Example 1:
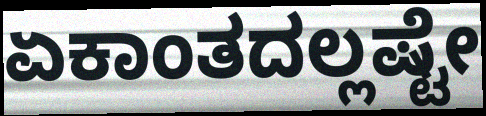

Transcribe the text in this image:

ಏಕಾಂತದಲ್ಲಷ್ಟೇ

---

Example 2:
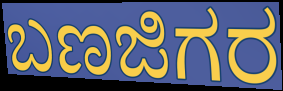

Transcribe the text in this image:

ಬಣಜಿಗರ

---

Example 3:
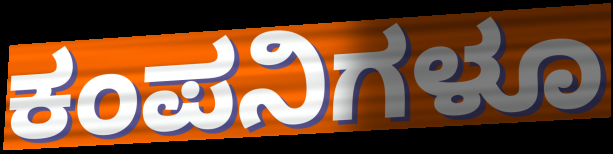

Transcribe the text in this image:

ಕಂಪನಿಗಳೂ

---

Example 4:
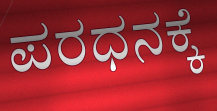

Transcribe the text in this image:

ಪರಧನಕ್ಕೆ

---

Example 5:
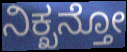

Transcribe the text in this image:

ನಿಕ್ಖನ್ತೋ